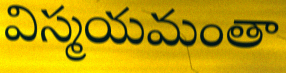
విస్మయమంతా